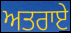
ਅਤਰਾਏ